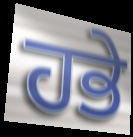
ਹਭੇ